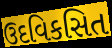
ઉદવિકસિત